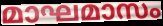
മാഘമാസം